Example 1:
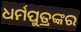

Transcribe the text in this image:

ଧର୍ମପୁତ୍ରଙ୍କର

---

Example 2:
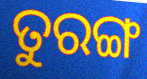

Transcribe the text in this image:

ତୁରଙ୍ଗ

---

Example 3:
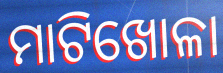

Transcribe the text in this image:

ମାଟିଖୋଳା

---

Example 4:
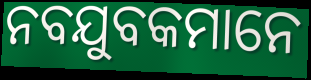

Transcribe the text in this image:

ନବଯୁବକମାନେ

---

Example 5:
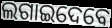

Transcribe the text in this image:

ଲଗାଇଦେବେ